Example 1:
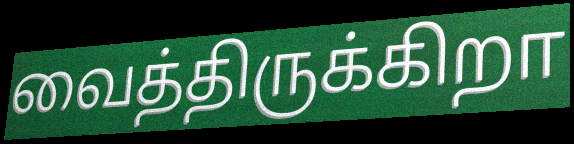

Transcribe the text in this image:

வைத்திருக்கிறா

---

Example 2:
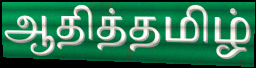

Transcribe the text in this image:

ஆதித்தமிழ்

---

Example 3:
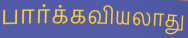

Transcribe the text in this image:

பார்க்கவியலாது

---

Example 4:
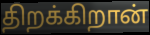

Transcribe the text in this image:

திறக்கிறான்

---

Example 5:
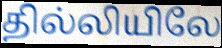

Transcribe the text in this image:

தில்லியிலே